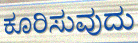
ಕೂರಿಸುವುದು